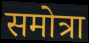
समोत्रा